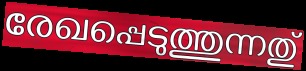
രേഖപ്പെടുത്തുന്നതു്